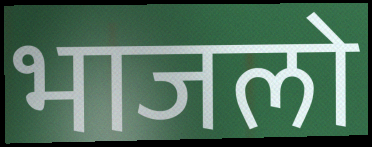
भाजलो